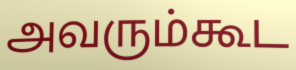
அவரும்கூட